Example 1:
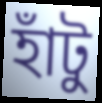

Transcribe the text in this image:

হাঁটু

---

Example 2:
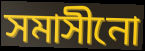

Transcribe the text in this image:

সমাসীনো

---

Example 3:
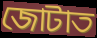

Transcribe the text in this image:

জোটাত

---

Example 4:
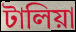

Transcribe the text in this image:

টালিয়া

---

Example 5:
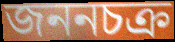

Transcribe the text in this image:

জননচক্র